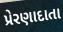
પ્રેરણાદાતા